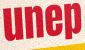
unep